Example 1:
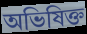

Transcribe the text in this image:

অভিষিক্ত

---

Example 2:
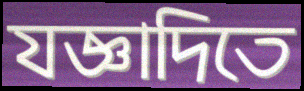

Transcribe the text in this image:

যজ্ঞাদিতে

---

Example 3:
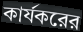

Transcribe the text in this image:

কার্যকরের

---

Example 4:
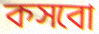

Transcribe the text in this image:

কসবো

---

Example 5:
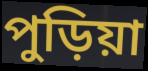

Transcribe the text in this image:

পুড়িয়া